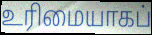
உரிமையாகப்